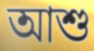
আশু